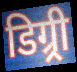
डिग्र्री